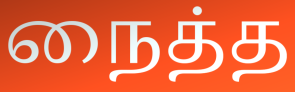
நைத்த